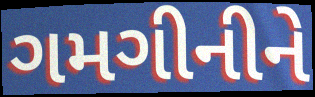
ગમગીનીને